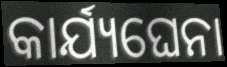
କାର୍ଯ୍ୟଘେନା